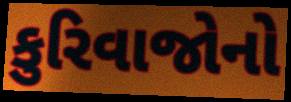
કુરિવાજોનો